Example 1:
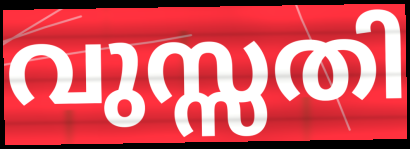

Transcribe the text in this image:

വുസ്സതി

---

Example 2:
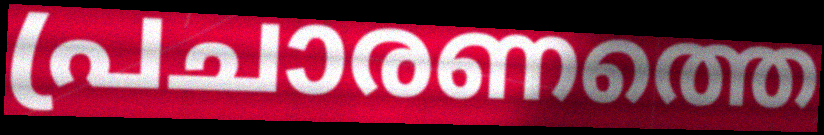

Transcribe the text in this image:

പ്രചാരണത്തെ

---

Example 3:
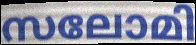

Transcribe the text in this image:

സലോമി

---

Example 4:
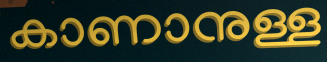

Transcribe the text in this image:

കാണാനുള്ള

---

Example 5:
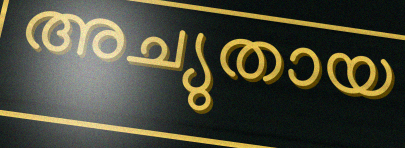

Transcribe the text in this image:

അച്യുതായ